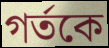
গর্তকে